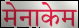
मेनाकेम